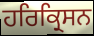
ਹਰਿਕ੍ਰਿਸਨ